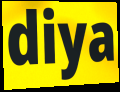
diya